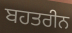
ਬਹਤਰੀਨ